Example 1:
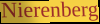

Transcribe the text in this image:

Nierenberg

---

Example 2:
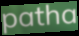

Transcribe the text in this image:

patha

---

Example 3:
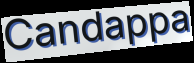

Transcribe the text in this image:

Candappa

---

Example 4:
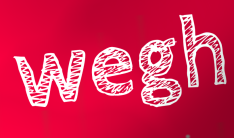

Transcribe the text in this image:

wegh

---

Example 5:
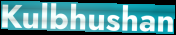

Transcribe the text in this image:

Kulbhushan